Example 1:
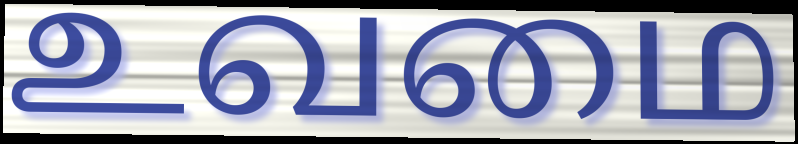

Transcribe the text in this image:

உவமை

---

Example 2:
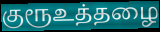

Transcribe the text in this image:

குரூஉத்தழை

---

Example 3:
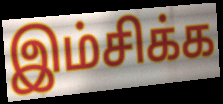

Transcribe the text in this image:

இம்சிக்க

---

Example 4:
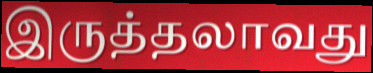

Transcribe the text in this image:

இருத்தலாவது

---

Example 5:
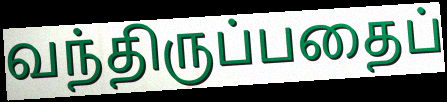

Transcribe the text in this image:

வந்திருப்பதைப்